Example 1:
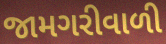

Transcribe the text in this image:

જામગરીવાળી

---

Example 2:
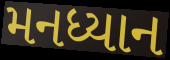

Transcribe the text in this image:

મનધ્યાન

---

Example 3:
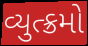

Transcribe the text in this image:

વ્યુત્ક્રમો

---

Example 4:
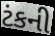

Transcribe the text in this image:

ટંકની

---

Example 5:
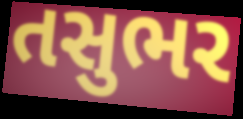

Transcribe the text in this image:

તસુભર